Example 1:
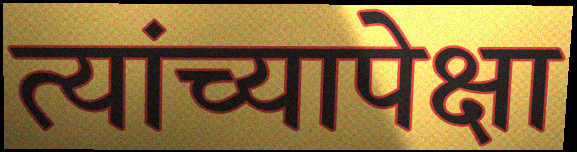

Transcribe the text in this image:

त्यांच्यापेक्षा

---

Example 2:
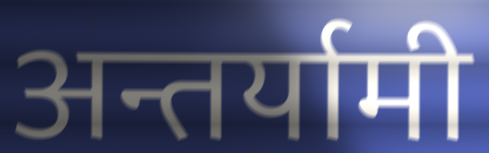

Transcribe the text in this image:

अन्तर्यामी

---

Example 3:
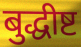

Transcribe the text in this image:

बुद्धीष्ट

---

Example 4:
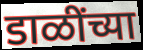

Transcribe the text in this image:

डाळींच्या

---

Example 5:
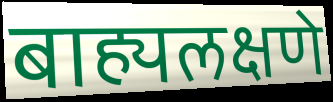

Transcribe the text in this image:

बाह्यलक्षणे